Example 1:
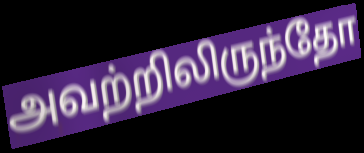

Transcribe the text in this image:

அவற்றிலிருந்தோ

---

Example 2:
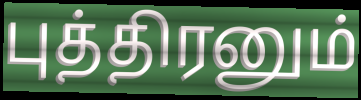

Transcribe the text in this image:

புத்திரனும்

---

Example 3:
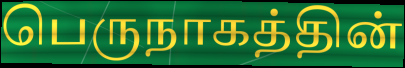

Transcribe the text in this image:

பெருநாகத்தின்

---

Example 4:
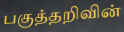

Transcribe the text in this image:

பகுத்தறிவின்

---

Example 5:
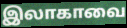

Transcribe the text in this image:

இலாகாவை